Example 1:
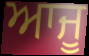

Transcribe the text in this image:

ਆਜੂ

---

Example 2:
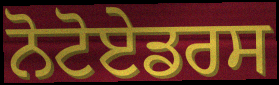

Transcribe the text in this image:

ਨੋਟੋਏਡਰਸ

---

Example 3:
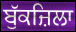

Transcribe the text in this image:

ਬੁੱਕਜ਼ਿਲਾ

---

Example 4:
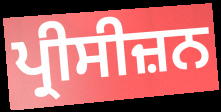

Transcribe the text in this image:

ਪ੍ਰੀਸੀਜ਼ਨ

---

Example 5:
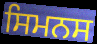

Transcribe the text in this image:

ਸਿਮਨਸ